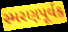
સ્મરણપૂર્વક